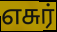
எசுர்